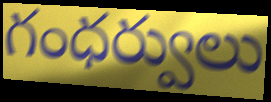
గంధర్వులు